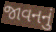
જાવનનું